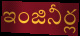
ఇంజినీర్ల